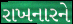
રાખનારને